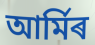
আৰ্মিৰ